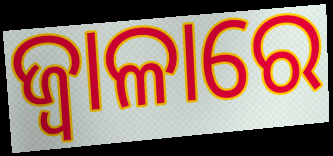
ଜ୍ଵାଳାରେ